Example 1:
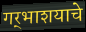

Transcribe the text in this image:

गर्भाशयाचे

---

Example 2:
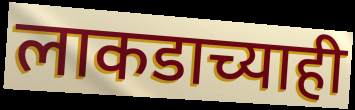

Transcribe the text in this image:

लाकडाच्याही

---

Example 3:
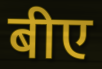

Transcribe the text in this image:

बीए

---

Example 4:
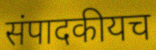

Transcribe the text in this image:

संपादकीयच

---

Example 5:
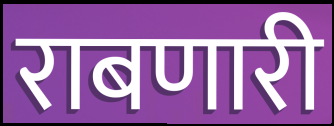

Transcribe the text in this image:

राबणारी